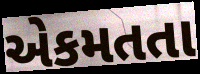
એકમતતા